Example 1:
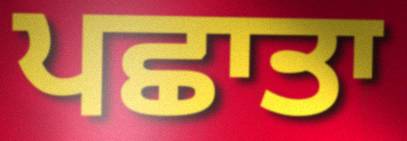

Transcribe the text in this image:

ਪਛਾਤਾ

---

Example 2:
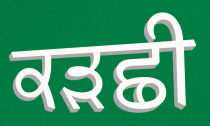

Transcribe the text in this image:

ਕੜਛੀ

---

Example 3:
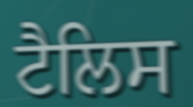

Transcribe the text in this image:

ਟੈਲਿਸ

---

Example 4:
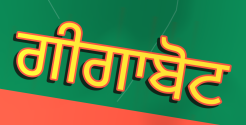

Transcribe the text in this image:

ਗੀਗਾਬੋਟ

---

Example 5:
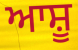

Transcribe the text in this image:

ਆਸ਼ੂ